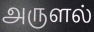
அருளல்